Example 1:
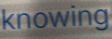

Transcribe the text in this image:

knowing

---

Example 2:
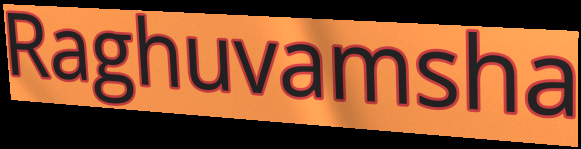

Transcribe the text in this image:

Raghuvamsha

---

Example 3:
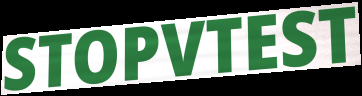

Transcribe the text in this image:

STOPVTEST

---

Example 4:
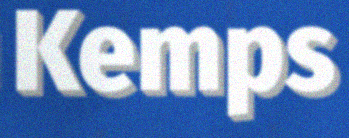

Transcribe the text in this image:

Kemps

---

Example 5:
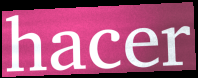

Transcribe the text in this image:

hacer